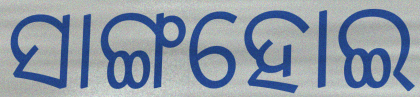
ସାଙ୍ଗହୋଇ